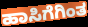
ಹಾಸಿಗೆಗಿಂತ